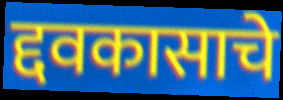
द्दवकासाचे